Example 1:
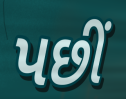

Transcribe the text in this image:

પછીં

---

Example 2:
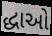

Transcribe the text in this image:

દ્ધાઓ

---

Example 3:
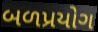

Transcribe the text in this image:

બળપ્રયોગ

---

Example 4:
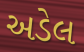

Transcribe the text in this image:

અડેલ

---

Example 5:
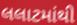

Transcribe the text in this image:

લલાટમાંથી